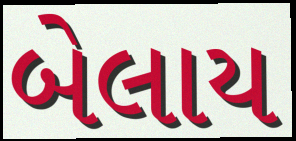
બેલાય